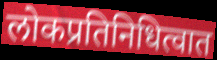
लोकप्रतिनिधित्वात